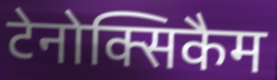
टेनोक्सिकैम